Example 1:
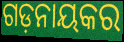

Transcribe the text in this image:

ଗଡ଼ନାୟକର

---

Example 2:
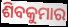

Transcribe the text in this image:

ଶିବକୁମାର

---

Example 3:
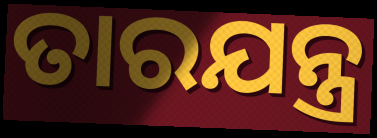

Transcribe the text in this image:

ତାରଯନ୍ତ୍ର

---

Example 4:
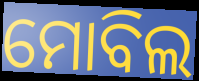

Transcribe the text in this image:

ମୋବିଲ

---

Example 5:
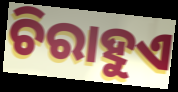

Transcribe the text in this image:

ଚିରାହୁଏ